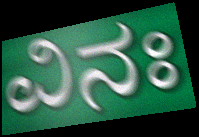
ವಿನಃ